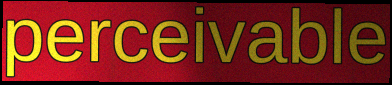
perceivable